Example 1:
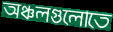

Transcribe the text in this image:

অঞ্চলগুলোতে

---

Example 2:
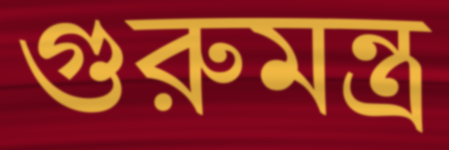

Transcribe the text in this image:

গুরুমন্ত্র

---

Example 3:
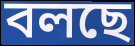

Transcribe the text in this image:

বলছে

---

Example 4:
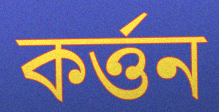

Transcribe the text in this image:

কর্ত্তন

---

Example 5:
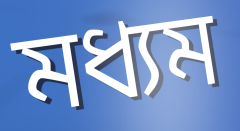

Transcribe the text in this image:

মধ্যম